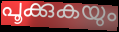
പൂക്കുകയും